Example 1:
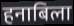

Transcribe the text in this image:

हनाबिला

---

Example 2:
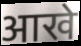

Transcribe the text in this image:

आखे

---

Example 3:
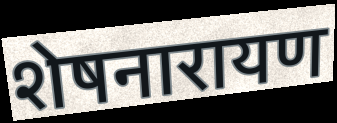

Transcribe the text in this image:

शेषनारायण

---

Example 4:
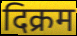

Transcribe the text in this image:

दिक्रम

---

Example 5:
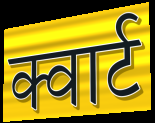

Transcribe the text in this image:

क्वार्ट